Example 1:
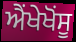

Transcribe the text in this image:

ਐਂਖੇਖੋਂਸੂ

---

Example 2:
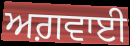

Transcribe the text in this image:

ਅਗ਼ਵਾਈ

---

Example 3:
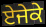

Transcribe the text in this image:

ਏਜੇਕੇ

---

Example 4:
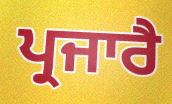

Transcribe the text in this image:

ਪ੍ਰਜਾਰੈ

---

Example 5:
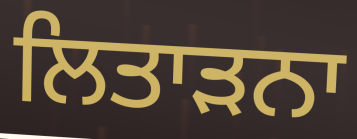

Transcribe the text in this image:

ਲਿਤਾੜਨਾ